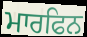
ਮਾਰਫਿਨ